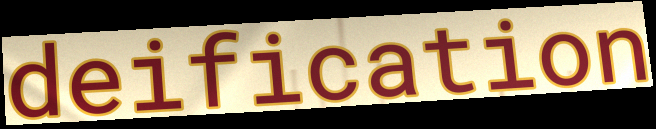
deification